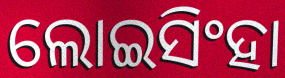
ଲୋଇସିଂହା